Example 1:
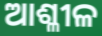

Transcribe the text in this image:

ଆଶ୍ଳୀଳ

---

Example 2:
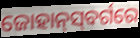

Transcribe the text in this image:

ଜୋହାନ୍‌ସ୍‌ବର୍ଗରେ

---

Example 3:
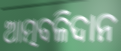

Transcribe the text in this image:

ଆତ୍ମବଳିଦାନ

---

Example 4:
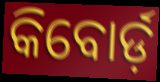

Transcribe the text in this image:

କିବୋର୍ଡ଼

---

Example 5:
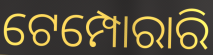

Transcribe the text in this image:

ଟେମ୍ପୋରାରି